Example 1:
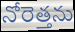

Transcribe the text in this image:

నోరెత్తను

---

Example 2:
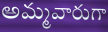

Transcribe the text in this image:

అమ్మవారుగా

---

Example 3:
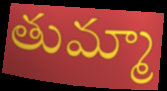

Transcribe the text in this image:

తుమ్మా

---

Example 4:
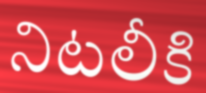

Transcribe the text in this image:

నిటలీకి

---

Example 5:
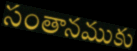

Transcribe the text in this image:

సంతానముకు